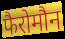
फैरोमौन